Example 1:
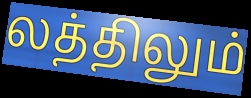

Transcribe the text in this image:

லத்திலும்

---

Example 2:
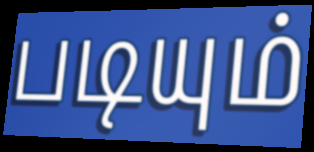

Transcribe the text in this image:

படியும்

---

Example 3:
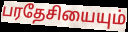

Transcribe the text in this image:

பரதேசியையும்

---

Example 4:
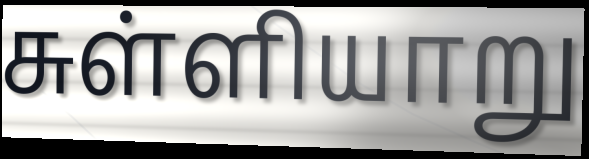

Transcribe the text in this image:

சுள்ளியாறு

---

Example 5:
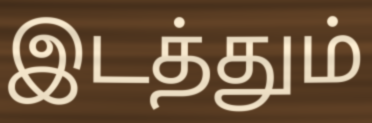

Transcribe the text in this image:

இடத்தும்